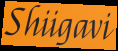
Shiigavi